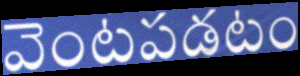
వెంటపడటం